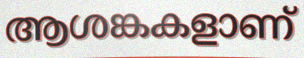
ആശങ്കകളാണ്